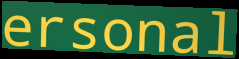
ersonal